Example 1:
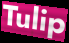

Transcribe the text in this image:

Tulip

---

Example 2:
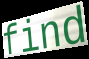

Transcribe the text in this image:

find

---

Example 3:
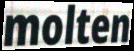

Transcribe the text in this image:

molten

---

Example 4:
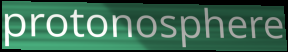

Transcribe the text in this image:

protonosphere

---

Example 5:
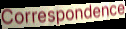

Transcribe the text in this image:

Correspondence